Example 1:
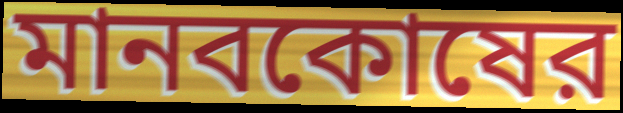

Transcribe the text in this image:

মানবকোষের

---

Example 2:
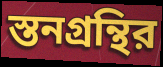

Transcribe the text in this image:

স্তনগ্রন্থির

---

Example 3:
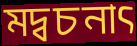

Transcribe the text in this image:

মদ্বচনাৎ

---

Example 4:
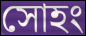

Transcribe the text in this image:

সোহং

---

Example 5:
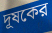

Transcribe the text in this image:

দূষকের